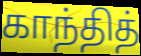
காந்தித்